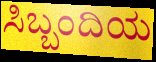
ಸಿಬ್ಬಂದಿಯ